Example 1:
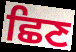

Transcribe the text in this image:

ਛਿਣ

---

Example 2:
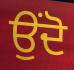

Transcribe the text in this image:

ਉਂਦੋ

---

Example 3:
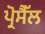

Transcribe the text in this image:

ਪ੍ਰੋਸੈੱਲ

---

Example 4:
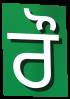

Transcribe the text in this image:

ਰੌ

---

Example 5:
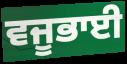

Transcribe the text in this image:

ਵਜੂਭਾਈ